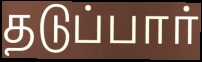
தடுப்பார்